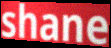
shane